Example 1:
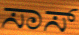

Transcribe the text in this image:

ಸಾಸ್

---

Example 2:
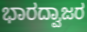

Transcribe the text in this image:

ಭಾರದ್ವಾಜರ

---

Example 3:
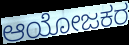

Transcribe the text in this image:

ಆಯೋಜಕರ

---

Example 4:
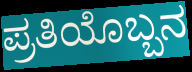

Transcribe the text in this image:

ಪ್ರತಿಯೊಬ್ಬನ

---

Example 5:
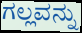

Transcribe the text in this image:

ಗಲ್ಲವನ್ನು